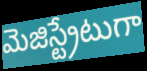
మెజిస్ట్రేటుగా